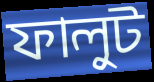
ফালুট